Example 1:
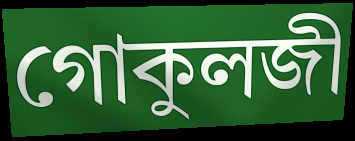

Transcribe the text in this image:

গোকুলজী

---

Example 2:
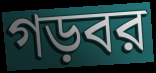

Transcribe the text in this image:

গড়বর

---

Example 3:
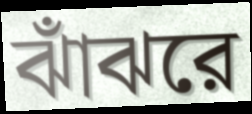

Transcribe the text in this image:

ঝাঁঝরে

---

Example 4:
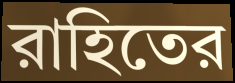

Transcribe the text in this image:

রাহিতের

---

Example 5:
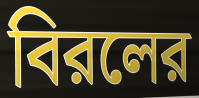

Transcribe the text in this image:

বিরলের